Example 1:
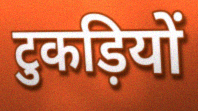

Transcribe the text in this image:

टुकड़ियों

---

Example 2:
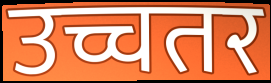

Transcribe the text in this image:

उच्चतर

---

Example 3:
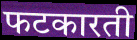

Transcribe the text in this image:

फटकारती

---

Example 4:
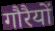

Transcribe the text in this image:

गौरैयों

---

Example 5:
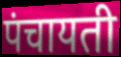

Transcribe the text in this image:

पंचायती